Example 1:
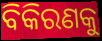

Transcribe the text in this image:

ବିକିରଣକୁ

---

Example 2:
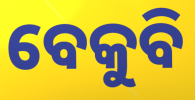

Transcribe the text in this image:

ବେକୁବି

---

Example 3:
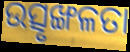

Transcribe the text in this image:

ଉତ୍ସୃଙ୍ଖଳତା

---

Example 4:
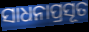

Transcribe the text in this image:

ସାଧନାପ୍ରସୂତ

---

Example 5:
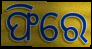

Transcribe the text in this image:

ଫିରେ